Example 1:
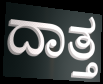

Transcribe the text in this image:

ದಾತ್ತ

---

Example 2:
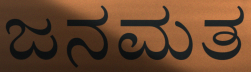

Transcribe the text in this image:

ಜನಮತ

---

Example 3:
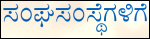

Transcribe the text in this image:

ಸಂಘಸಂಸ್ಥೆಗಳಿಗೆ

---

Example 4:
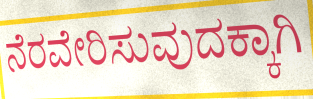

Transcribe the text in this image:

ನೆರವೇರಿಸುವುದಕ್ಕಾಗಿ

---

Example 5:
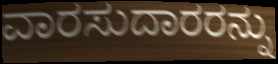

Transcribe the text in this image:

ವಾರಸುದಾರರನ್ನು